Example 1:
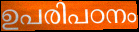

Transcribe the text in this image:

ഉപരിപഠനം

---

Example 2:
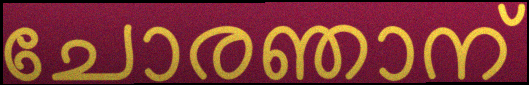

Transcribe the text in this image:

ചോരഞാന്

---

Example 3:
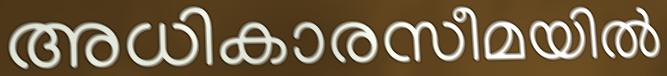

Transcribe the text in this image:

അധികാരസീമയിൽ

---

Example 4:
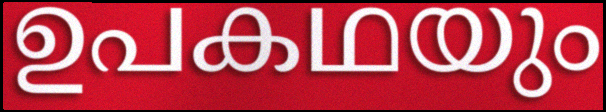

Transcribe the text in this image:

ഉപകഥയും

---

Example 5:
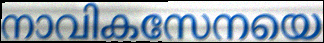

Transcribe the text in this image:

നാവികസേനയെ